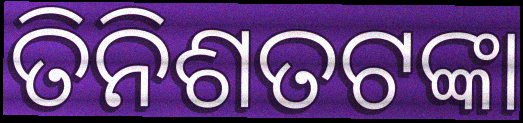
ତିନିଶତଟଙ୍କା